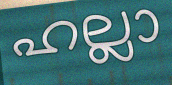
ഹല്ലാ